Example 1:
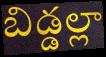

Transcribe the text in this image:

బిడ్డల్లా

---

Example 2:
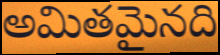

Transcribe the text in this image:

అమితమైనది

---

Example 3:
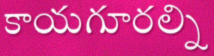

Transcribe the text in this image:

కాయగూరల్ని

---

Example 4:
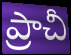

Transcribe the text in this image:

ప్రాచీ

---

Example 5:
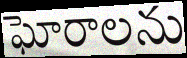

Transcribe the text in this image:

ఘోరాలను